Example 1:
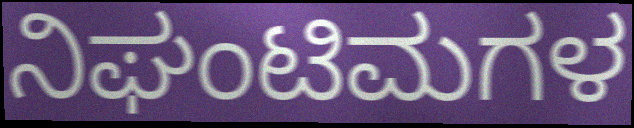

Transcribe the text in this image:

ನಿಘಂಟಿಮಗಳ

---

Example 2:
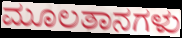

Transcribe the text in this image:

ಮೂಲತಾನಗಳು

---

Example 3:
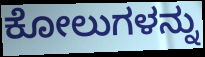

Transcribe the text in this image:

ಕೋಲುಗಳನ್ನು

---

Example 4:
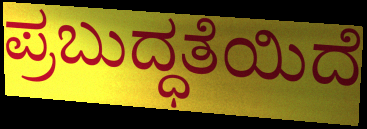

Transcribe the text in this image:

ಪ್ರಬುದ್ಧತೆಯಿದೆ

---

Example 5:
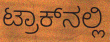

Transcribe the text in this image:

ಟ್ರಾಕ್‌ನಲ್ಲಿ